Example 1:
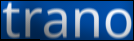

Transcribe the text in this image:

trano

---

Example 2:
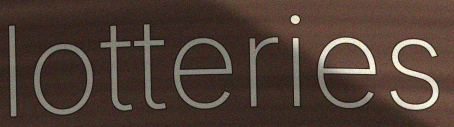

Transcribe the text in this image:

lotteries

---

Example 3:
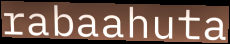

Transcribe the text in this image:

rabaahuta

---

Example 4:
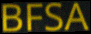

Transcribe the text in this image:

BFSA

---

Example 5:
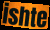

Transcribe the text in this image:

ishte